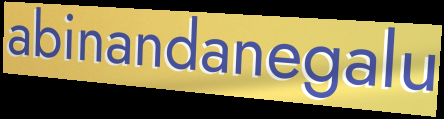
abinandanegalu